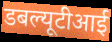
डबल्यूटीआई